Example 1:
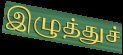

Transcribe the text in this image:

இழுத்துச்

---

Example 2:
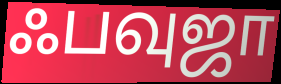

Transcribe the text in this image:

ஃபவுஜா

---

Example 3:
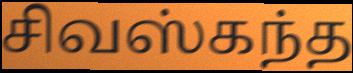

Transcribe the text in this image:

சிவஸ்கந்த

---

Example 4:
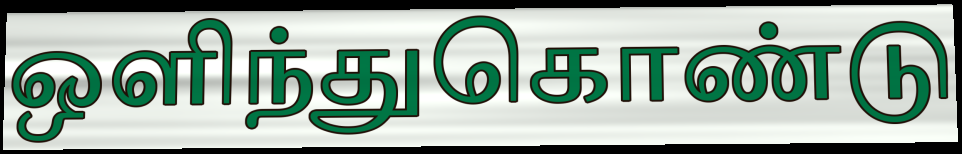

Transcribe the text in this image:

ஒளிந்துகொண்டு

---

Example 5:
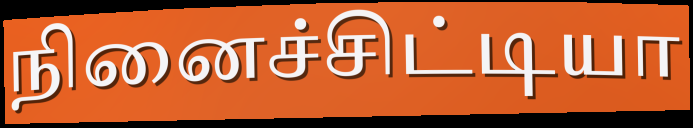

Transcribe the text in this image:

நினைச்சிட்டியா